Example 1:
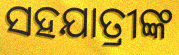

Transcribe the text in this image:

ସହଯାତ୍ରୀଙ୍କ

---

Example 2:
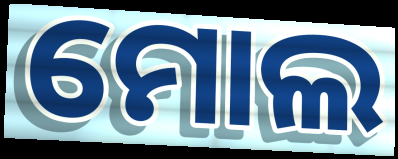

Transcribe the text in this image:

ମୋଲ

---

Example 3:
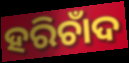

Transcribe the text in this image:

ହରିଚାଁଦ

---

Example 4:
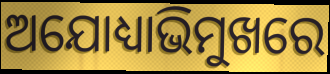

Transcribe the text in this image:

ଅଯୋଧ୍ୟାଭିମୁଖରେ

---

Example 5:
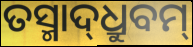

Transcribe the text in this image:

ତସ୍ମାଦ୍‌ଧ୍ରୁବମ୍